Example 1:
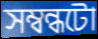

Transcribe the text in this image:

সম্বন্ধটো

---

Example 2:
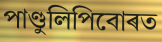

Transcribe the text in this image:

পাণ্ডুলিপিবোৰত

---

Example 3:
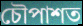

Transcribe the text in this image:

চৌপাশত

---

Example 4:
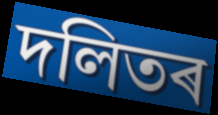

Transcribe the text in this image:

দলিতৰ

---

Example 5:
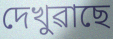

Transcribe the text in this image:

দেখুৱাছে